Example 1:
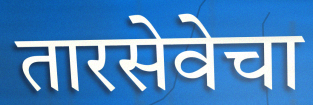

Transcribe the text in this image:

तारसेवेचा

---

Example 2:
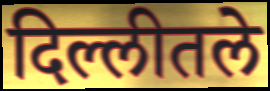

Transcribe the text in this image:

दिल्लीतले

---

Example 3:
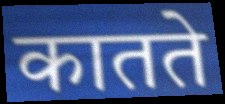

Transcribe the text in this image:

कातते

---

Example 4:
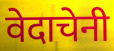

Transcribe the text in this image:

वेदाचेनी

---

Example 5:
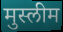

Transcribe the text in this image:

मुस्लीम